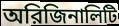
অরিজিনালিটি